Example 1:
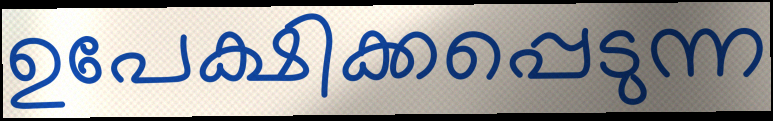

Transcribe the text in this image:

ഉപേക്ഷിക്കപ്പെടുന്ന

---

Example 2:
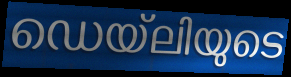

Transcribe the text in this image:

ഡെയ്‌ലിയുടെ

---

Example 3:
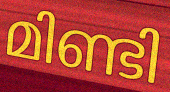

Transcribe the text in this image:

മിണ്ടി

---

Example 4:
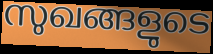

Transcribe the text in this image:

സുഖങ്ങളുടെ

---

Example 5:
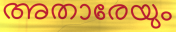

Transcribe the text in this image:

അതാരേയും